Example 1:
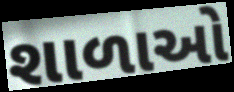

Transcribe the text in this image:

શાળાઓ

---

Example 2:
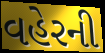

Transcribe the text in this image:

વહેરની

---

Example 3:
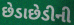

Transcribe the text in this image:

છેડાછેડીની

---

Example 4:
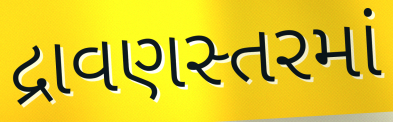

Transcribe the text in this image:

દ્રાવણસ્તરમાં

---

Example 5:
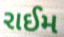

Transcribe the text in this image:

રાઈમ